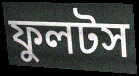
ফুলটস